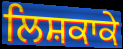
ਲਿਸ਼ਕਾਕੇ